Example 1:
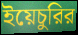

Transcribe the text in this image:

ইয়েচুরির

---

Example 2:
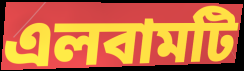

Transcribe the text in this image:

এলবামটি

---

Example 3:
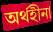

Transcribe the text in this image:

অর্থহীনা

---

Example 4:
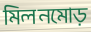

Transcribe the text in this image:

মিলনমোড়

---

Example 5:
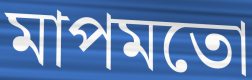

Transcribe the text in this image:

মাপমতো